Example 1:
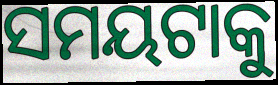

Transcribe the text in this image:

ସମୟଟାକୁ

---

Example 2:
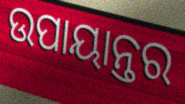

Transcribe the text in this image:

ଉପାୟାନ୍ତର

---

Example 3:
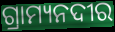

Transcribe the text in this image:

ଗ୍ରାମ୍ୟନଦୀର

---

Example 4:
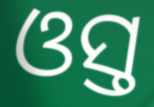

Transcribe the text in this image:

ଓସ୍ତ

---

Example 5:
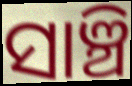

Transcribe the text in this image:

ସାଞ୍ଚି